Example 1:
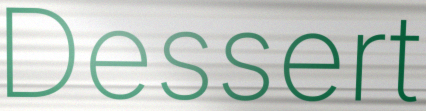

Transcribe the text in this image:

Dessert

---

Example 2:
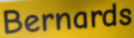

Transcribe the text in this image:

Bernards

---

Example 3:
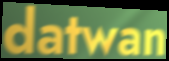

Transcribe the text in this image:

datwan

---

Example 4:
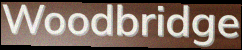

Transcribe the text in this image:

Woodbridge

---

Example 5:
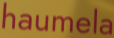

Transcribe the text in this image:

haumela